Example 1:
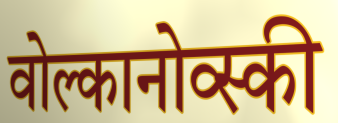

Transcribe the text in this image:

वोल्कानोव्स्की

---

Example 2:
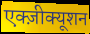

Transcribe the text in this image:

एक्ज़ीक्यूशन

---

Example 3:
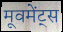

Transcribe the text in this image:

मूवमेंट्स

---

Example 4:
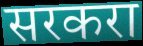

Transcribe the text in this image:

सरकरा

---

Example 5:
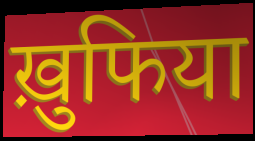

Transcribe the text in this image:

ख़ुफिया